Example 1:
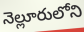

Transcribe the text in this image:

నెల్లూరులోని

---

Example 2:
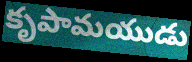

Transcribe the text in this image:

కృపామయుడు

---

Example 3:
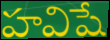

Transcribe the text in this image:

హవిషే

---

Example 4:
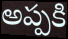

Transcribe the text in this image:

అప్పకి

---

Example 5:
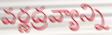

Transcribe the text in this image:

వర్ణద్రవ్యాన్ని